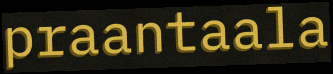
praantaala